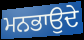
ਮਨਭਾਉਦੇ